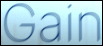
Gain